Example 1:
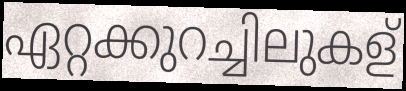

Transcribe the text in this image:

ഏറ്റക്കുറച്ചിലുകള്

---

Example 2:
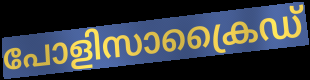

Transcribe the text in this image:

പോളിസാക്രൈഡ്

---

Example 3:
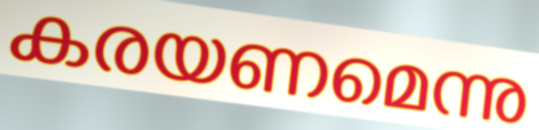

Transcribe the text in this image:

കരയണമെന്നു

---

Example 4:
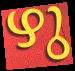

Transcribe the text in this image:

ഴു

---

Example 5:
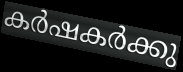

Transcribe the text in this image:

കർഷകർക്കു